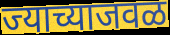
ज्याच्याजवळ